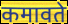
कमावते